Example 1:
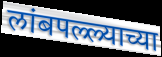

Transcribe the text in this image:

लांबपल्ल्याच्या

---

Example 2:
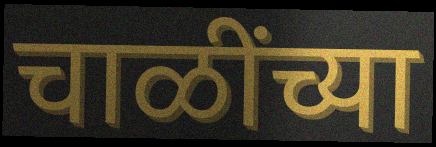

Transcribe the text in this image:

चाळींच्या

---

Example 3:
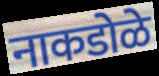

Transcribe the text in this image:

नाकडोळे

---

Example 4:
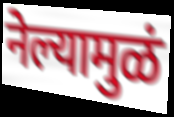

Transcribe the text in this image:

नेल्यामुळं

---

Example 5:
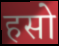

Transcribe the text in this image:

हसो